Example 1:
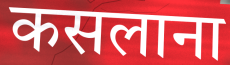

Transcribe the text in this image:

कसलाना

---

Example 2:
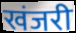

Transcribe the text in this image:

खंजरी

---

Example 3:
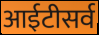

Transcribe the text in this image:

आईटीसर्व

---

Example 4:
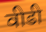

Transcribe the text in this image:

वीडी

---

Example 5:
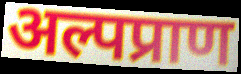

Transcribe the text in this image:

अल्पप्राण